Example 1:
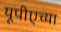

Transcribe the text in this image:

यूपीएच्या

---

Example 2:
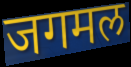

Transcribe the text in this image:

जगमल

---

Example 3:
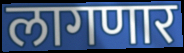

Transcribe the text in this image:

लागणार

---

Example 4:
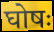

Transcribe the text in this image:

घोषः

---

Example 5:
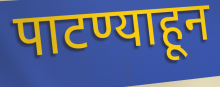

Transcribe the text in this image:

पाटण्याहून